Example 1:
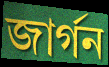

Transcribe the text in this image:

জার্গন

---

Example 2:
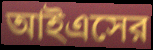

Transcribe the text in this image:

আইএসের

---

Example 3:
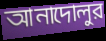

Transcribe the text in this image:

আনাদোলুর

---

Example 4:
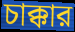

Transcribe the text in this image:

চাক্কার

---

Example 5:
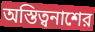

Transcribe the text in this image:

অস্তিত্বনাশের